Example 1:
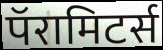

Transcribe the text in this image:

पॅरामिटर्स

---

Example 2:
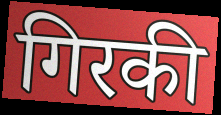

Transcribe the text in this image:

गिरकी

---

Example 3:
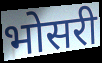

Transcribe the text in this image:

भोसरी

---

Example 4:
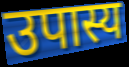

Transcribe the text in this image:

उपास्य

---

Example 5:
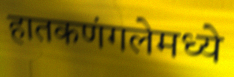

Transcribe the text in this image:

हातकणंगलेमध्ये